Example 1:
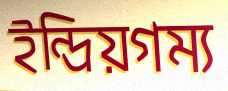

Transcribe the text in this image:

ইন্দ্রিয়গম্য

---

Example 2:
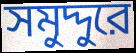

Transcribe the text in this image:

সমুদ্দুরে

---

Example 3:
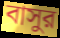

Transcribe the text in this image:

বাসুর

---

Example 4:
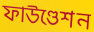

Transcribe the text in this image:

ফাউণ্ডেশন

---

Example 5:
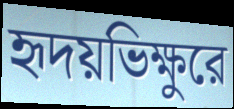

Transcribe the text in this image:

হৃদয়ভিক্ষুরে